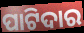
ପାଟିଦାର